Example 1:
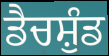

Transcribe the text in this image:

ਡੈਚਸ਼ੁੰਡ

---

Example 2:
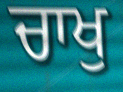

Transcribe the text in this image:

ਚਾਖੁ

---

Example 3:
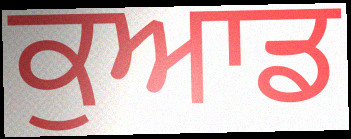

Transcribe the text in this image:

ਕੁਆਡ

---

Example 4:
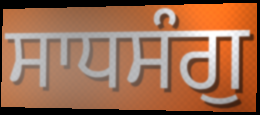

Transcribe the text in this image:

ਸਾਧਸੰਗੁ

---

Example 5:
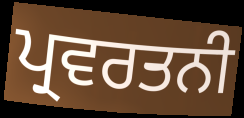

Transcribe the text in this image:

ਪ੍ਰਵਰਤਨੀ